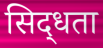
सिद्‌धता